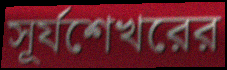
সূর্যশেখরের